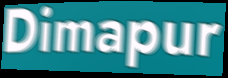
Dimapur